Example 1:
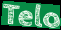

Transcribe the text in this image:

Telo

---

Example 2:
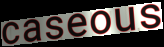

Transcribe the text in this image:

caseous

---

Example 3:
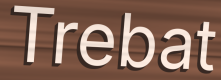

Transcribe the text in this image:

Trebat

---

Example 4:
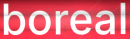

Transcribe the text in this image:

boreal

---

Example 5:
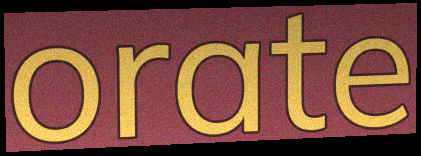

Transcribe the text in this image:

orate